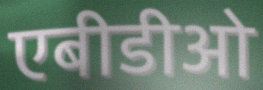
एबीडीओ